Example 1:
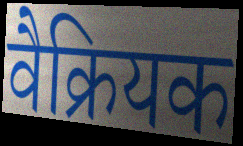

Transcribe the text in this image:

वैक्रियक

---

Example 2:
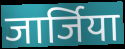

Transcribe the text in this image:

जार्जिया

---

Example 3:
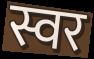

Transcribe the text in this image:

स्वर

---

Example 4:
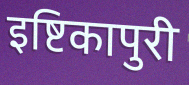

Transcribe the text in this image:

इष्टिकापुरी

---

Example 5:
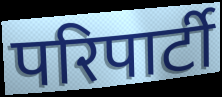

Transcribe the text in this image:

परिपार्टी